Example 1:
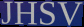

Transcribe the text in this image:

JHSV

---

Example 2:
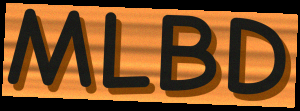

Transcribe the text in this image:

MLBD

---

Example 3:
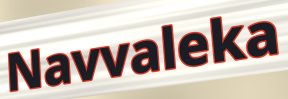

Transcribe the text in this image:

Navvaleka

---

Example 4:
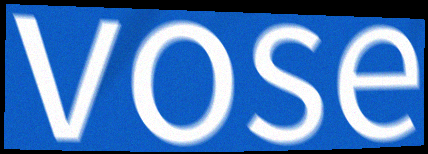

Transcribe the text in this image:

vose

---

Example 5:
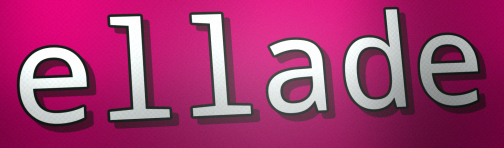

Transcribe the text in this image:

ellade